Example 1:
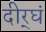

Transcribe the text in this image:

दीर्घं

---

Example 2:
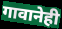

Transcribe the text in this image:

गावानेही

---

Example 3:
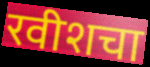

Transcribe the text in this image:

रवीशचा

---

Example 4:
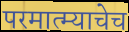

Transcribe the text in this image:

परमात्म्याचेच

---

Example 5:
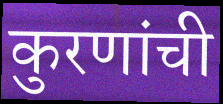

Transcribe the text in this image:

कुरणांची